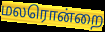
மலரொன்றை